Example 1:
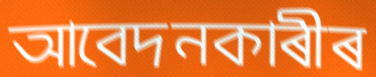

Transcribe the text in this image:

আবেদনকাৰীৰ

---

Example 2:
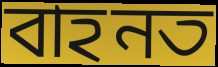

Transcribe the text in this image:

বাহনত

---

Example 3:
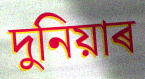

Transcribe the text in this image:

দুনিয়াৰ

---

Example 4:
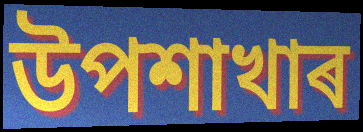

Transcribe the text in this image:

উপশাখাৰ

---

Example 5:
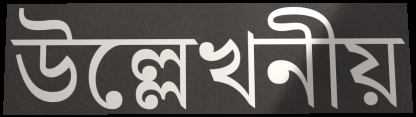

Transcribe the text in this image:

উল্লেখনীয়